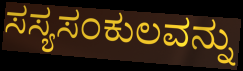
ಸಸ್ಯಸಂಕುಲವನ್ನು